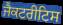
ਜੈਕਟਰੀਟਿਸ